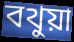
বথুয়া